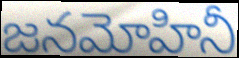
జనమోహినీ